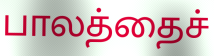
பாலத்தைச்